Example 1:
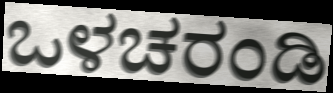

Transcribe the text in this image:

ಒಳಚರಂಡಿ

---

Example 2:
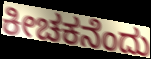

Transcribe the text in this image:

ಕೀಚಕನೆಂದು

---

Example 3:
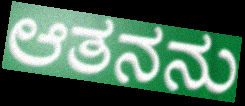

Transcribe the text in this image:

ಆತನನು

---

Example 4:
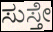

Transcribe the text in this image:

ಸುಸ್ತೇ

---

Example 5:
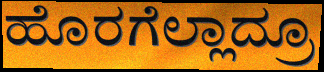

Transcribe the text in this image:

ಹೊರಗೆಲ್ಲಾದ್ರೂ